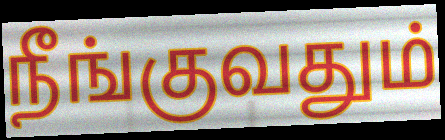
நீங்குவதும்